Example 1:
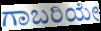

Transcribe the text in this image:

ಗಾಬರಿಯೇ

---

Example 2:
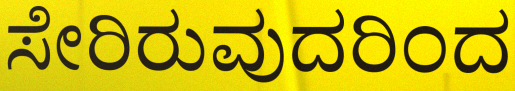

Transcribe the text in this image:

ಸೇರಿರುವುದರಿಂದ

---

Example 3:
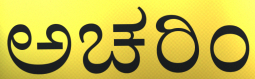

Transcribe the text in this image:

ಅಚರಿಂ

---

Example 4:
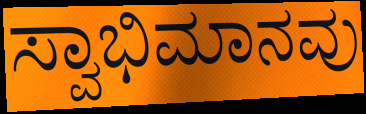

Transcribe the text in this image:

ಸ್ವಾಭಿಮಾನವು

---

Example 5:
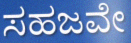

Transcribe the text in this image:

ಸಹಜವೇ